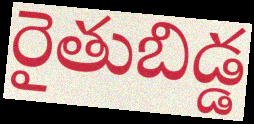
రైతుబిడ్డ